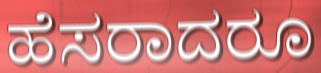
ಹೆಸರಾದರೂ